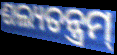
ଶଲ୍ୟତନ୍ତ୍ରମ୍